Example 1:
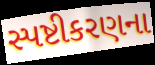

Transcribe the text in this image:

સ્પષ્ટીકરણના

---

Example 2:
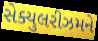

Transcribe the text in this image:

સેક્યુલરીઝમને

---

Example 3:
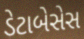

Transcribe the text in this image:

ડેટાબેસેસ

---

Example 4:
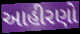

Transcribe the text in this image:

આહીરણો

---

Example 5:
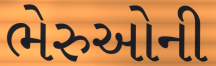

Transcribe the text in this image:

ભેરુઓની